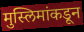
मुस्लिमांकडून